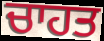
ਚਾਹਤ